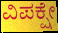
ವಿಪಕ್ಷೇ